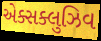
એક્સક્લુઝિવ